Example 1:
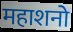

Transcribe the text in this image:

महाशनो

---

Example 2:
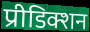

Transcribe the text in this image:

प्रीडिक्शन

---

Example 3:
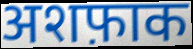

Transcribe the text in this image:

अशफ़ाक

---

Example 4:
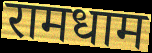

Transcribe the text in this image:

रामधाम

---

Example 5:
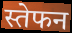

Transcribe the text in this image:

स्तेफन